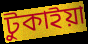
টুকাইয়া